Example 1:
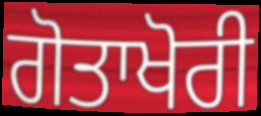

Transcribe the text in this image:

ਗੋਤਾਖੋਰੀ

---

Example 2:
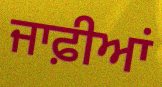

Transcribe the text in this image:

ਜਾਫ਼ੀਆਂ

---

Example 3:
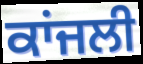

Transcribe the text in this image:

ਕਾਂਜਲੀ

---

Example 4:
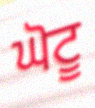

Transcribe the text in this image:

ਘੋਟੂ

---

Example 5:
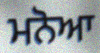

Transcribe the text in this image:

ਮਨੋਆ